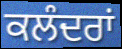
ਕਲੰਦਰਾਂ